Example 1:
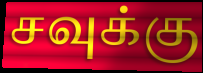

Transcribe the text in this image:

சவுக்கு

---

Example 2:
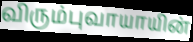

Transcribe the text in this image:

விரும்புவாயாயின்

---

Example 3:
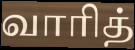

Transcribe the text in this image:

வாரித்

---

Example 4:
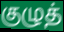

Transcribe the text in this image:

குழுத்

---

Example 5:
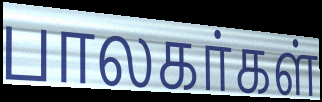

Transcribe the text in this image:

பாலகர்கள்